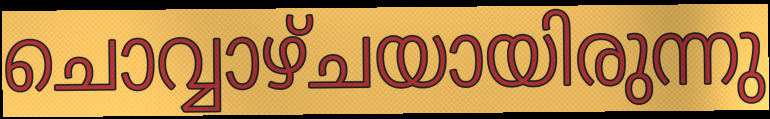
ചൊവ്വാഴ്ചയായിരുന്നു